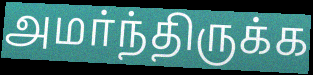
அமர்ந்திருக்க